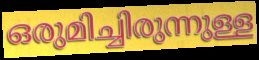
ഒരുമിച്ചിരുന്നുള്ള